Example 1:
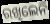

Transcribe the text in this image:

ରଖିଲେନି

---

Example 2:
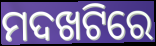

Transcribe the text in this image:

ମଦଖଟିରେ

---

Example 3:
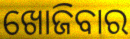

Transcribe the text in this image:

ଖୋଜିବାର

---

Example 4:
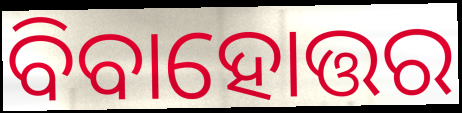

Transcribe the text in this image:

ବିବାହୋତ୍ତର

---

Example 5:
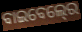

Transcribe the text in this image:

ବାଇବେଲ୍‍ରେ